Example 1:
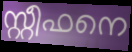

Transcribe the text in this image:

സ്റ്റീഫനെ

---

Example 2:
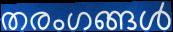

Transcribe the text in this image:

തരംഗങ്ങൾ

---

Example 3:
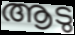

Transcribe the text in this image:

ആടു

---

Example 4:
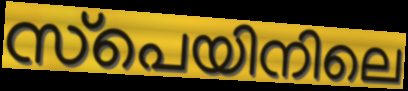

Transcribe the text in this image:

സ്‌പെയിനിലെ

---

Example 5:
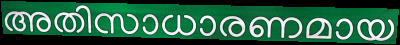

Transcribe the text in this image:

അതിസാധാരണമായ